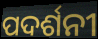
ପଦର୍ଶନୀ